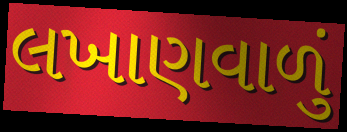
લખાણવાળું